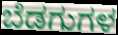
ಬೆಡಗುಗಳ